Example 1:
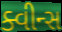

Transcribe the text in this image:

ક્વીન્સ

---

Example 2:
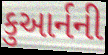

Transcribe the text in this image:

કુઆર્નની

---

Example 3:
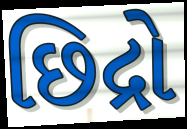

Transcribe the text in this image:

છિદ્રો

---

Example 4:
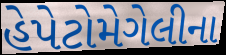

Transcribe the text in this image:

હેપેટોમેગેલીના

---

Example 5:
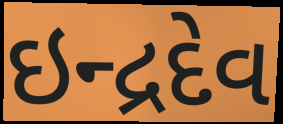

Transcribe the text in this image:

ઇન્દ્રદેવ